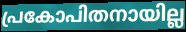
പ്രകോപിതനായില്ല